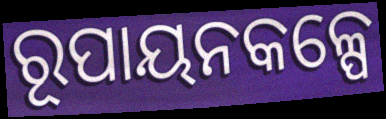
ରୂପାୟନକଳ୍ପେ